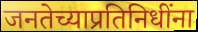
जनतेच्याप्रतिनिधींना